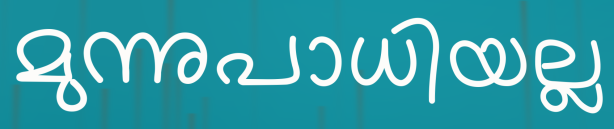
മുന്നുപാധിയല്ല